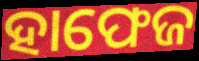
ହାଫେଜ